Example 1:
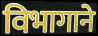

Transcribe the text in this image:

विभागाने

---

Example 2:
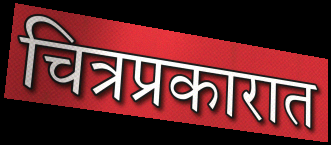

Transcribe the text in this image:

चित्रप्रकारात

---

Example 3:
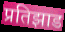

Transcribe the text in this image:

प्रतिझाड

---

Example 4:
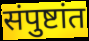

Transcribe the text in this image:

संपुष्टांत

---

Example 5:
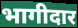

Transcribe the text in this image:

भागीदार